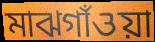
মাঝগাঁওয়া